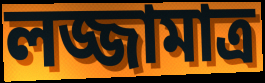
লজ্জামাত্র